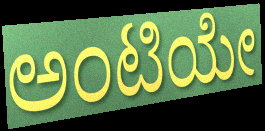
ಅಂಟಿಯೇ